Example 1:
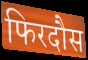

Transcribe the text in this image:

फिरदौस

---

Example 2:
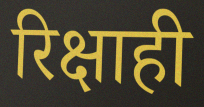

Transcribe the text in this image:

रिक्षाही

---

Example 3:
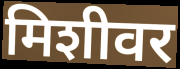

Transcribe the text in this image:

मिशीवर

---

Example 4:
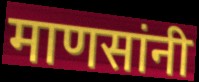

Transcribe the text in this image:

माणसांनी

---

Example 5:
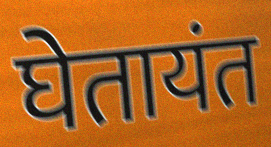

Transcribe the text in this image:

घेतायंत